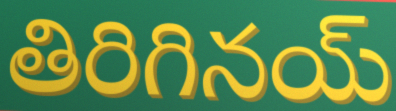
తిరిగినయ్